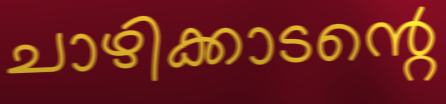
ചാഴിക്കാടന്റെ